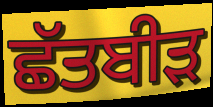
ਛੱਤਬੀੜ